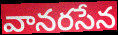
వానరసేన